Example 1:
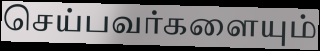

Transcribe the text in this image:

செய்பவர்களையும்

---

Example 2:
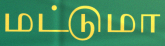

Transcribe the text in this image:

மட்டுமா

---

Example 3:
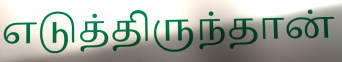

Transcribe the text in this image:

எடுத்திருந்தான்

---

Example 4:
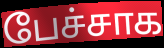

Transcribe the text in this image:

பேச்சாக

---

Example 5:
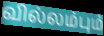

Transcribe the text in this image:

வில்லம்பும்